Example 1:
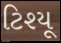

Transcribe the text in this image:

ટિશ્યૂ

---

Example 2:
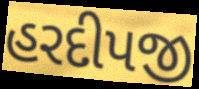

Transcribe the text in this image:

હરદીપજી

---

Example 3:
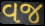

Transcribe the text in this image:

વજ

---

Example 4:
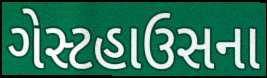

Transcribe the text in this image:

ગેસ્ટહાઉસના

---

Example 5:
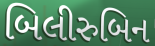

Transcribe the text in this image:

બિલીરુબિન